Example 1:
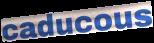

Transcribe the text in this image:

caducous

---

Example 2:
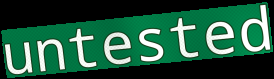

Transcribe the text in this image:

untested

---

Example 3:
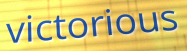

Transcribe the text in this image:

victorious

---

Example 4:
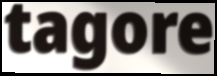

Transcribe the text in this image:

tagore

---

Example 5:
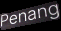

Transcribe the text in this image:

Penang